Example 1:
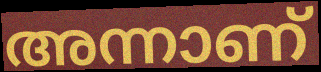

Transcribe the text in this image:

അന്നാണ്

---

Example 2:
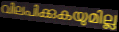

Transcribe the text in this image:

വിലപിക്കുകയുമില്ല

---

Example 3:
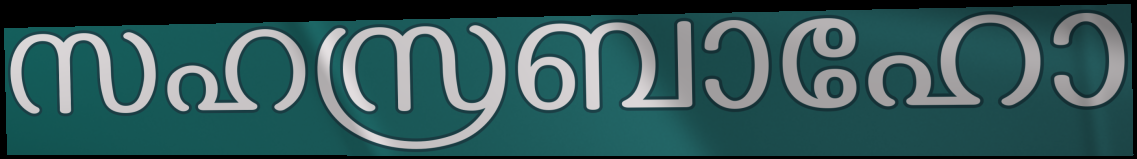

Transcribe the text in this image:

സഹസ്രബാഹോ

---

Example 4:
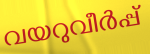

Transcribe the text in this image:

വയറുവീർപ്പ്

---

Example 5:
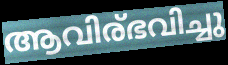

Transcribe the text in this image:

ആവിര്ഭവിച്ചു